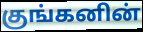
குங்கனின்